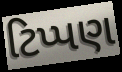
ટિપ્પણ